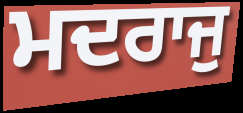
ਮਦਰਾਜੁ